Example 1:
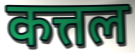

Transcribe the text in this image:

कत्तल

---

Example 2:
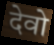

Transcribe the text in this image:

देवो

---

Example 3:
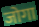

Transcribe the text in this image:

जोगा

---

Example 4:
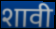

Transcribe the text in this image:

शावी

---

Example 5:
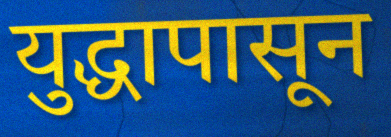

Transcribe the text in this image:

युद्धापासून